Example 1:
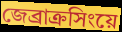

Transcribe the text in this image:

জেব্রাক্রসিংয়ে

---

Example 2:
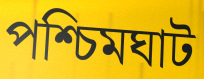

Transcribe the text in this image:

পশ্চিমঘাট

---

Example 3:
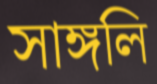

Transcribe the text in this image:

সাঙ্গলি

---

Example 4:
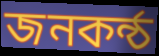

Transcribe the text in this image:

জনকন্ঠ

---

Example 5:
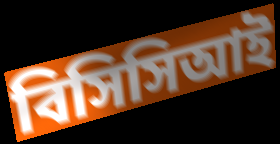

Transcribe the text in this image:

বিসিসিআই